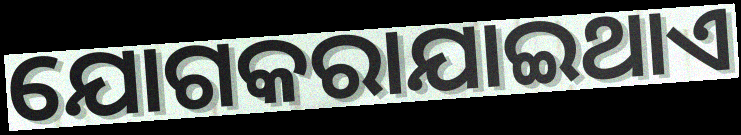
ଯୋଗକରାଯାଇଥାଏ